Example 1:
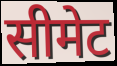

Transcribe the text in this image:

सीमेट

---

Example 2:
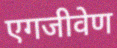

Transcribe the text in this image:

एगजीवेण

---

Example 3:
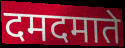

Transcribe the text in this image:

दमदमाते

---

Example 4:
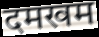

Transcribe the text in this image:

दमखम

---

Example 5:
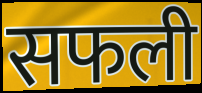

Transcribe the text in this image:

सफली